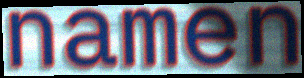
namen